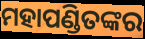
ମହାପଣ୍ଡିତଙ୍କର